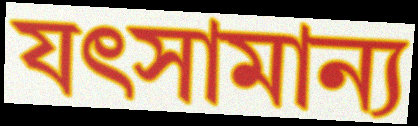
যৎসামান্য